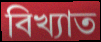
বিখ্যাত